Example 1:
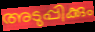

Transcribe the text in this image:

അടുപ്പിക്കും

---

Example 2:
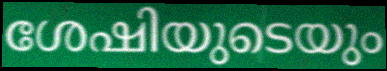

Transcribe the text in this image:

ശേഷിയുടെയും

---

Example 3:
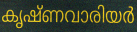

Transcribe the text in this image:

കൃഷ്ണവാരിയർ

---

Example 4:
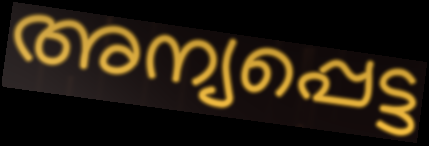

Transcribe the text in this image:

അന്യപ്പെട്ട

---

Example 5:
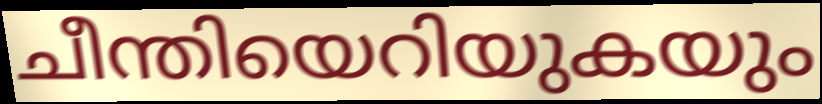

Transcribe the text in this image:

ചീന്തിയെറിയുകയും